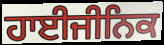
ਹਾਈਜੀਨਿਕ